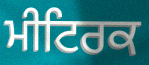
ਮੀਟਿਰਕ